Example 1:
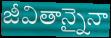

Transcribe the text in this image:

జీవితాన్నైనా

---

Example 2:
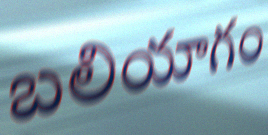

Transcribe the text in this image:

బలియాగం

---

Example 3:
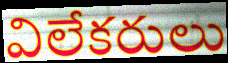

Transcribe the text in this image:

విలేకరులు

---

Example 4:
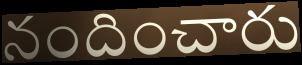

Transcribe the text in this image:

నందించారు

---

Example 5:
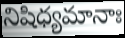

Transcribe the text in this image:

నిషిధ్యమానాః